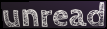
unread